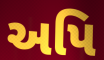
અપિ